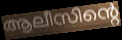
ആലീസിന്റെ